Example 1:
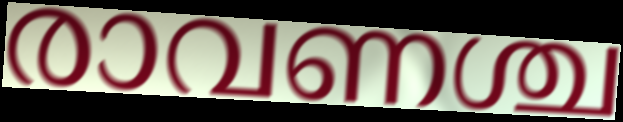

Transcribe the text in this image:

രാവണശ്ച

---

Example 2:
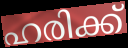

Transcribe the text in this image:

ഹരിക്ക്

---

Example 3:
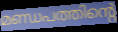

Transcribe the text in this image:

മണ്ഡപത്തിന്റെ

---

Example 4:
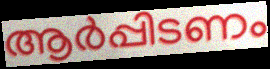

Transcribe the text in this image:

ആർപ്പിടണം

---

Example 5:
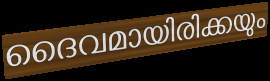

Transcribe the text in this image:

ദൈവമായിരിക്കയും